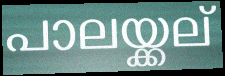
പാലയ്ക്കല്